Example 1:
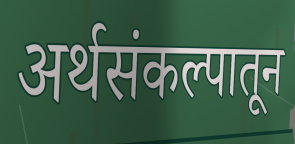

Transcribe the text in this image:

अर्थसंकल्पातून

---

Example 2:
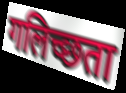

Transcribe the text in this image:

गलिच्छता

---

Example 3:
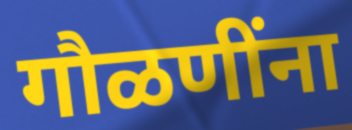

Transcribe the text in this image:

गौळणींना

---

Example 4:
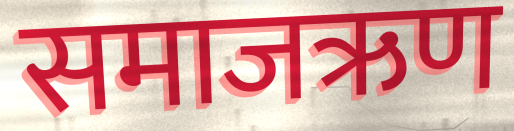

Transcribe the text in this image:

समाजऋण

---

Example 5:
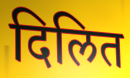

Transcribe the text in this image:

दिलित